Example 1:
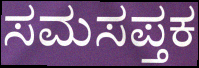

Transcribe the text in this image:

ಸಮಸಪ್ತಕ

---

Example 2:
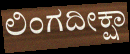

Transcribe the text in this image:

ಲಿಂಗದೀಕ್ಷಾ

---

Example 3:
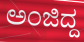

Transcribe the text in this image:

ಅಂಜಿದ್ದ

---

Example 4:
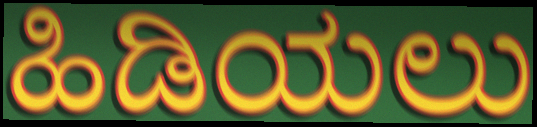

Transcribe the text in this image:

ಹಿಡಿಯಲು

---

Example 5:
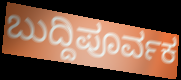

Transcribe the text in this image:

ಬುದ್ದಿಪೂರ್ವಕ